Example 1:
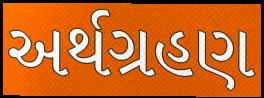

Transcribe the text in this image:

અર્થગ્રહણ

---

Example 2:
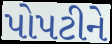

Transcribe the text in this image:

પોપટીને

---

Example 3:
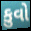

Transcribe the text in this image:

કુવો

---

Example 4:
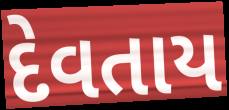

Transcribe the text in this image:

દેવતાય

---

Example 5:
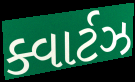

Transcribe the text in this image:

ક્વાર્ટઝ